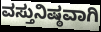
ವಸ್ತುನಿಷ್ಠವಾಗಿ